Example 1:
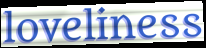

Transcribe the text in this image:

loveliness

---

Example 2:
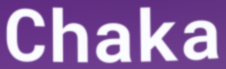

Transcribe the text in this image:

Chaka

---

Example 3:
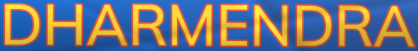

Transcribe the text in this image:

DHARMENDRA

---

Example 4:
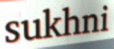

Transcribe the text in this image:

sukhni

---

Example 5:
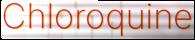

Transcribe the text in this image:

Chloroquine